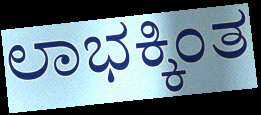
ಲಾಭಕ್ಕಿಂತ